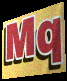
Mq